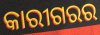
କାରୀଗରର